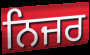
ਨਿਜਰ